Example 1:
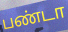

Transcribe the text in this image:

பண்டா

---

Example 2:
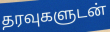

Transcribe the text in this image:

தரவுகளுடன்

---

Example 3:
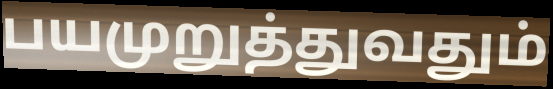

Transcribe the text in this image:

பயமுறுத்துவதும்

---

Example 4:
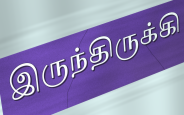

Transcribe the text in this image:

இருந்திருக்கி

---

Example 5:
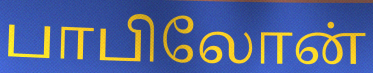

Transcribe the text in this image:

பாபிலோன்